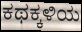
ಕಥಕ್ಕಳಿಯ